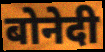
बोनेदी